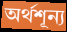
অর্থশূন্য